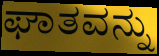
ಘಾತವನ್ನು